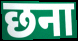
छना